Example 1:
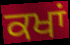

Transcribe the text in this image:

ਕਖਾਂ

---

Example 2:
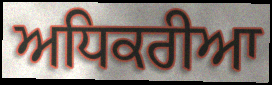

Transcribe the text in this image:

ਅਧਿਕਰੀਆ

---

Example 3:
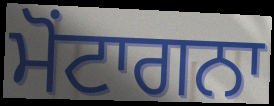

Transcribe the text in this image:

ਮੋਂਟਾਗਨਾ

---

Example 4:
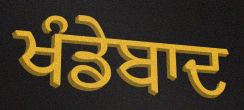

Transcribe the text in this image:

ਖੰਡੇਬਾਦ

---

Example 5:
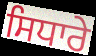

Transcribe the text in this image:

ਸਿਧਾਰੇ